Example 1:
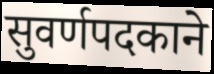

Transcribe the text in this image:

सुवर्णपदकाने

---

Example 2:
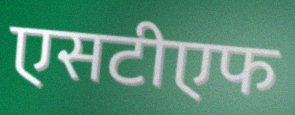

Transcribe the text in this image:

एसटीएफ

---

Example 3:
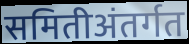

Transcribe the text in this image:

समितीअंतर्गत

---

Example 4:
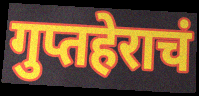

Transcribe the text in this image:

गुप्तहेराचं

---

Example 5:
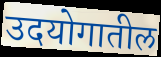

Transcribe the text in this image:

उदयोगातील